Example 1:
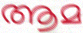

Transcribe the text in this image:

ആമ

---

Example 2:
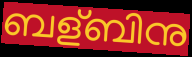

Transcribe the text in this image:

ബള്ബിനു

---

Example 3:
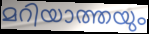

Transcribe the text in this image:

മറിയാത്തയും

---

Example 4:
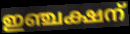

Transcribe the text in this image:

ഇഞ്ചക്ഷന്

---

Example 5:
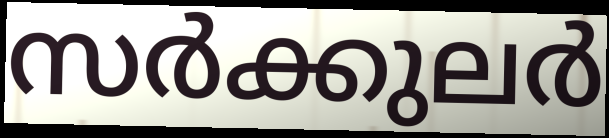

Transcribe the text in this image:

സർക്കുലർ